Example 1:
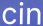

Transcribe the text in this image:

cin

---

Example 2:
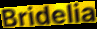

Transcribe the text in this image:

Bridelia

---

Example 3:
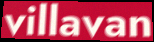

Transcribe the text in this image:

villavan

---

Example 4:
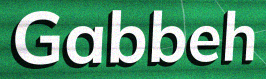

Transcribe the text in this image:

Gabbeh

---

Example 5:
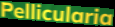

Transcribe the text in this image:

Pellicularia